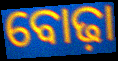
ବୋଢ଼ା